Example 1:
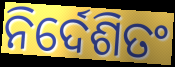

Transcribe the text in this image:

ନିର୍ଦେଶିତଂ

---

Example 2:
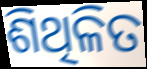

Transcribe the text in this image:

ଶିଥିଳିତ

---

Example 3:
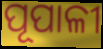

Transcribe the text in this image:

ପୂପାଳୀ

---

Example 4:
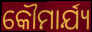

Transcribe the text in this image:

କୌମାର୍ଯ୍ୟ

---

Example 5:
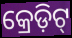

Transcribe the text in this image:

କ୍ରେଡ଼ିଟ୍